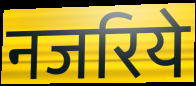
नजरिये